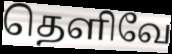
தெளிவே